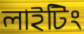
লাইটিং